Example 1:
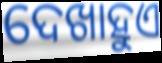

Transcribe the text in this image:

ଦେଖାହୁଏ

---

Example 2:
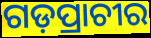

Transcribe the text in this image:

ଗଡ଼ପ୍ରାଚୀର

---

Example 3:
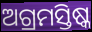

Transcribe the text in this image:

ଅଗ୍ରମସ୍ତିଷ୍କ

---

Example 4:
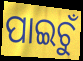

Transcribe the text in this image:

ପାଇଚୁଁ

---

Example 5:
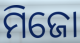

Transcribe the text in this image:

ମିଜୋ